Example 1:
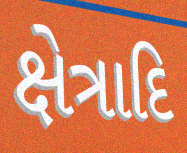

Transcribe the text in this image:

ક્ષેત્રાદિ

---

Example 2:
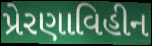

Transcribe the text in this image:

પ્રેરણાવિહીન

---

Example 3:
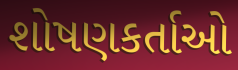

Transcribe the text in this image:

શોષણકર્તાઓ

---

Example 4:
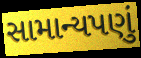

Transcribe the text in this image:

સામાન્યપણું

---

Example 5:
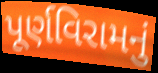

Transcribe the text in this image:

પૂર્ણવિરામનું